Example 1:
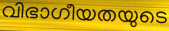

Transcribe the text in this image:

വിഭാഗീയതയുടെ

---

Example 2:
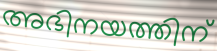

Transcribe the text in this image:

അഭിനയത്തിന്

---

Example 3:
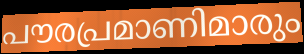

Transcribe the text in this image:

പൗരപ്രമാണിമാരും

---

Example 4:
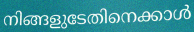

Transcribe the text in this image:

നിങ്ങളുടേതിനെക്കാൾ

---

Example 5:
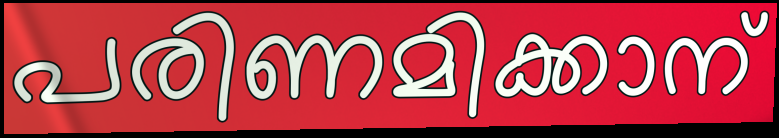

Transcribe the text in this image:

പരിണമിക്കാന്